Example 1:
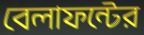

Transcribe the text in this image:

বেলাফন্টের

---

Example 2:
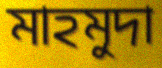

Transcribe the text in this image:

মাহমুদা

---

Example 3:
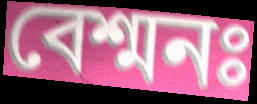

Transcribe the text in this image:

বেশ্মনঃ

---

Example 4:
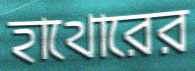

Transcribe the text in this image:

হাথোরের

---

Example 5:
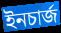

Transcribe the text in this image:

ইনচার্জ